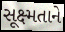
સૂક્ષ્મતાને